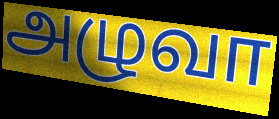
அழுவா